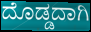
ದೊಡ್ಡದಾಗಿ